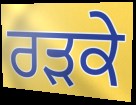
ਰੜਕੇ